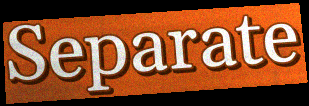
Separate